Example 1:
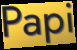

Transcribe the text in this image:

Papi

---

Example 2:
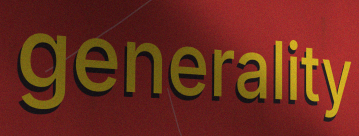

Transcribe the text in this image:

generality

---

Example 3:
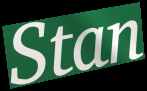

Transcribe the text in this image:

Stan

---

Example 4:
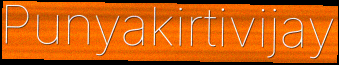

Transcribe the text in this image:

Punyakirtivijay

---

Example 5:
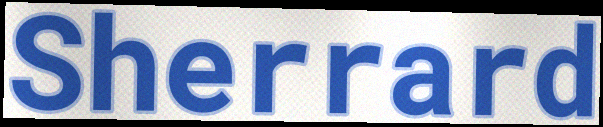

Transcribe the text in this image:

Sherrard